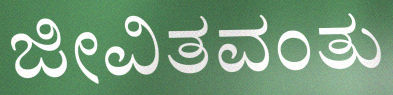
ಜೀವಿತವಂತು